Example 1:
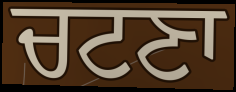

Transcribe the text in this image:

ਚਟਣਾ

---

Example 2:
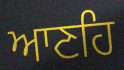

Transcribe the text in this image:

ਆਣਹਿ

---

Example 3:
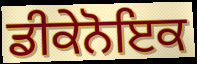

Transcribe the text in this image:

ਡੀਕੇਨੋਇਕ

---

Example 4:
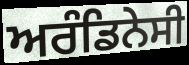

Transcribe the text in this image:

ਅਰੰਡਿਨੇਸੀ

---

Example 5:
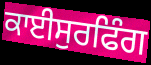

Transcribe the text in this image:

ਕਾਈਸੁਰਫਿੰਗ